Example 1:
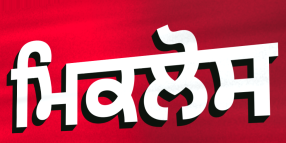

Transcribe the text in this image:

ਮਿਕਲੋਸ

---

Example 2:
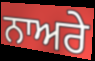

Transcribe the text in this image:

ਨਾਅਰੇ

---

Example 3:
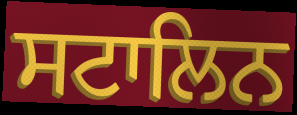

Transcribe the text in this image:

ਸਟਾਲਿਨ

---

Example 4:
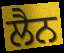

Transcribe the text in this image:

ਲੈਨ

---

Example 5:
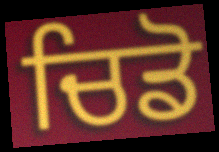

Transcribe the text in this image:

ਚਿਡੋ